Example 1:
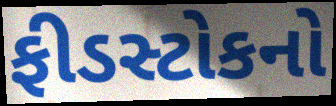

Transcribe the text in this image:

ફીડસ્ટોકનો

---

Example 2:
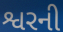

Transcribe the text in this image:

શ્વરની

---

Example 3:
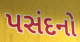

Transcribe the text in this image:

પસંદનો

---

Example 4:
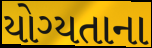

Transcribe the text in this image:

યોગ્યતાના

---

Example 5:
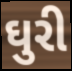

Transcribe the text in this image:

ઘુરી